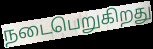
நடைபெறுகிறது